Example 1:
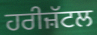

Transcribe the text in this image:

ਹਰੀਜ਼ੱਟਲ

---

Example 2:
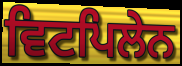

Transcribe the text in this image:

ਵਿਟਪਿਲੇਨ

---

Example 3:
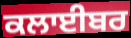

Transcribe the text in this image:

ਕਲਾਈਬਰ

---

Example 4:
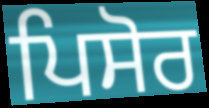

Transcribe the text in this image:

ਪਿਸੋਰ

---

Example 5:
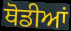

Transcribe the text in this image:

ਥੋਡੀਆਂ